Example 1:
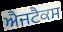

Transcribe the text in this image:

ਐਜਟੈਕਸ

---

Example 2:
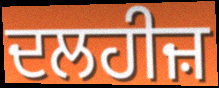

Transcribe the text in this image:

ਦਲਹੀਜ਼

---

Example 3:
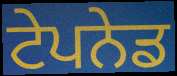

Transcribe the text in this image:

ਟੇਪਨੇਡ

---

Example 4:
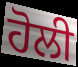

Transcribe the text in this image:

ਹੋਲੀ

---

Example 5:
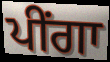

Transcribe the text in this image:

ਪੀਂਗਾ